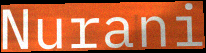
Nurani